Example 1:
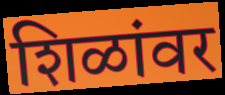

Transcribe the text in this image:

शिळांवर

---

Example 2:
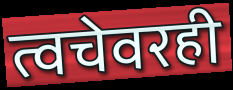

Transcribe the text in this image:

त्वचेवरही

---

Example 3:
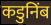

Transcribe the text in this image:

कडुनिंब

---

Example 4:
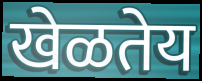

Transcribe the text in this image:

खेळतेय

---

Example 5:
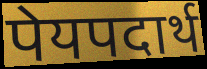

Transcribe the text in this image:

पेयपदार्थ